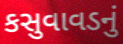
કસુવાવડનું